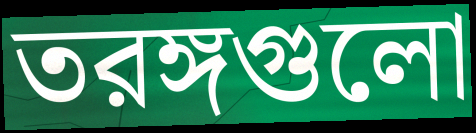
তরঙ্গগুলো